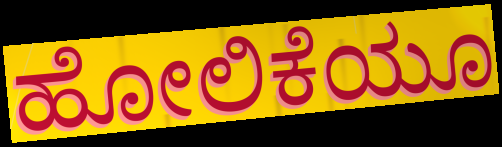
ಹೋಲಿಕೆಯೂ